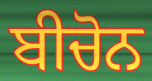
ਬੀਚੋਨ